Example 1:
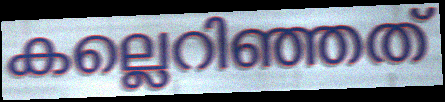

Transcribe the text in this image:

കല്ലെറിഞ്ഞത്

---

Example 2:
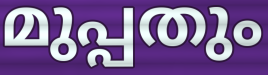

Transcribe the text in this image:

മുപ്പതും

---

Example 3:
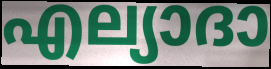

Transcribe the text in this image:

എല്യാദാ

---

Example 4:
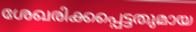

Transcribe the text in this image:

ശേഖരിക്കപ്പെട്ടതുമായ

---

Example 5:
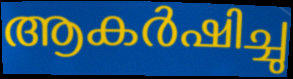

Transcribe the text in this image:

ആകർഷിച്ചു